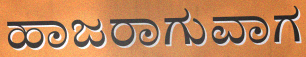
ಹಾಜರಾಗುವಾಗ